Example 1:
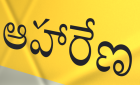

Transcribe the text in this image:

ఆహారేణ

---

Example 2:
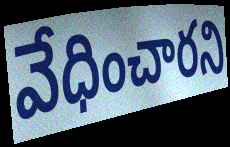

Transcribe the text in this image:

వేధించారని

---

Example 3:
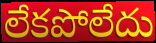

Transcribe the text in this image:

లేకపోలేదు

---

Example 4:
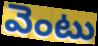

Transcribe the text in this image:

వెంటు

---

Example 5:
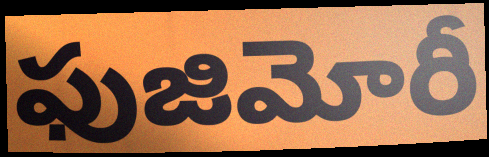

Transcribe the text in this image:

ఫుజిమోరీ